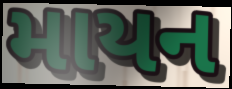
માયન